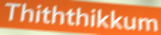
Thiththikkum